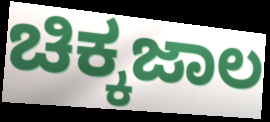
ಚಿಕ್ಕಜಾಲ